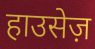
हाउसेज़